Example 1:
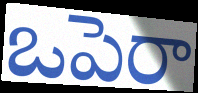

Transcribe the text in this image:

ఒపెరా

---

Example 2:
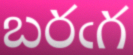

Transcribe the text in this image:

బరఁగ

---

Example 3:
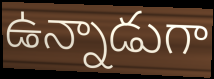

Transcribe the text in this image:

ఉన్నాడుగా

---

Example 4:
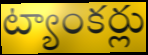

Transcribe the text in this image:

ట్యాంకర్లు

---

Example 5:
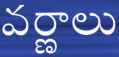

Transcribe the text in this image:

వర్ణాలు